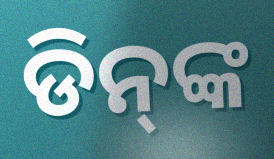
ଡିନ୍‌ଙ୍କ